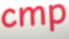
cmp